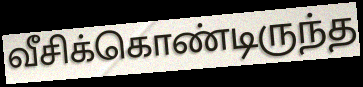
வீசிக்கொண்டிருந்த